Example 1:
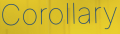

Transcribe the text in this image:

Corollary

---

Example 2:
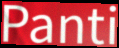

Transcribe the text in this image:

Panti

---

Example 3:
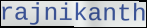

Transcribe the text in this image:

rajnikanth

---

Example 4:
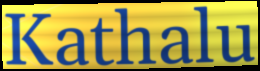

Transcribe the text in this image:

Kathalu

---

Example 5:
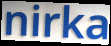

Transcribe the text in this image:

nirka